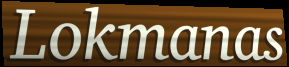
Lokmanas